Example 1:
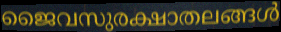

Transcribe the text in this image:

ജൈവസുരക്ഷാതലങ്ങൾ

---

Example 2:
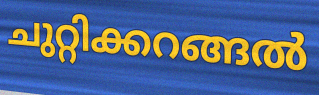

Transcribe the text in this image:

ചുറ്റിക്കറങ്ങൽ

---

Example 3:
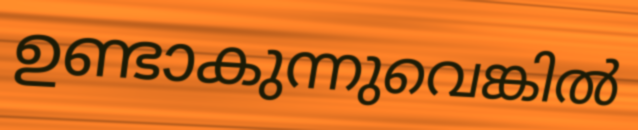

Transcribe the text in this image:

ഉണ്ടാകുന്നുവെങ്കിൽ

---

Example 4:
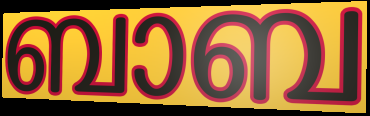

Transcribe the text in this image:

ബാബ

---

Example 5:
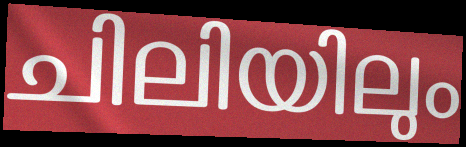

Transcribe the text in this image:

ചിലിയിലും